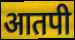
आतपी